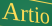
Artio